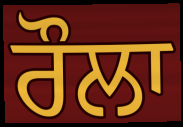
ਰੌਲਾ